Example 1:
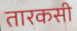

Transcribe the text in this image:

तारकसी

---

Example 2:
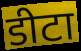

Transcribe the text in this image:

डीटा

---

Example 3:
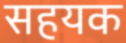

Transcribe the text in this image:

सहयक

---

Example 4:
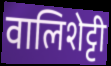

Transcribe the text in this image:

वालिशेट्टी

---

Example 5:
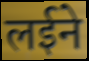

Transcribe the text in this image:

लईने